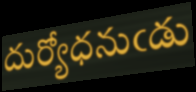
దుర్యోధనుఁడు